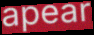
apear